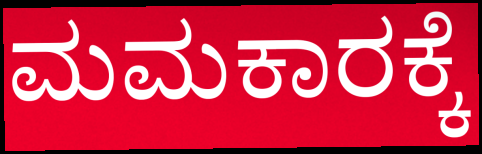
ಮಮಕಾರಕ್ಕೆ